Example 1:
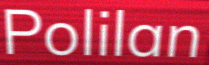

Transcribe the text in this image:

Polilan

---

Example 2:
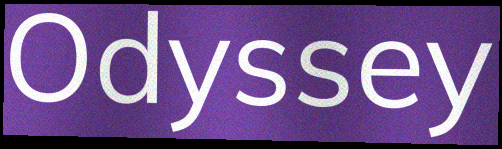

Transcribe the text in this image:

Odyssey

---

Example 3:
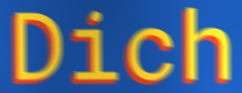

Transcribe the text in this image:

Dich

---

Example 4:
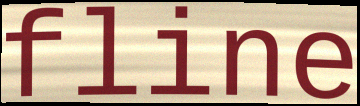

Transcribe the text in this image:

fline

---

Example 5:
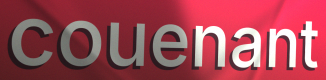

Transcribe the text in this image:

couenant